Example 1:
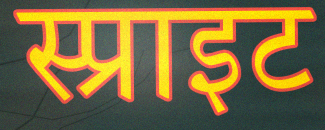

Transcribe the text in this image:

स्प्राइट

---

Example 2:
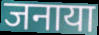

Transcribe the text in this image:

जनाया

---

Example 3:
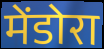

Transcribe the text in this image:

मेंडोरा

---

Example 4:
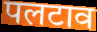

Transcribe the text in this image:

पलटाव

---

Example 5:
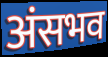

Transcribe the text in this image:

अंसभव